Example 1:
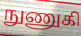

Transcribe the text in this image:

நுணுகி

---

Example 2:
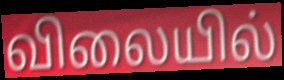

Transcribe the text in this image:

விலையில்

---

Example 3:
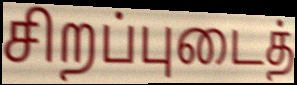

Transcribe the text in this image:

சிறப்புடைத்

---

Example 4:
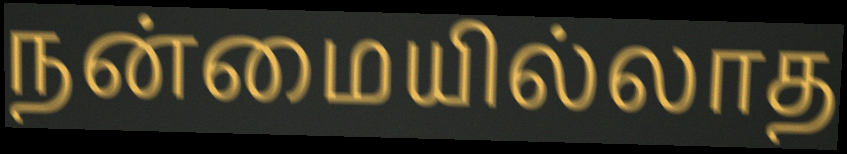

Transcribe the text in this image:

நன்மையில்லாத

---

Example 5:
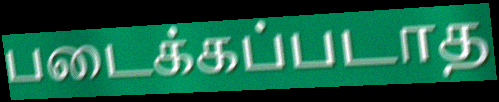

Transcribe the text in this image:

படைக்கப்படாத